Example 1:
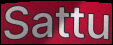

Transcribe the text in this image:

Sattu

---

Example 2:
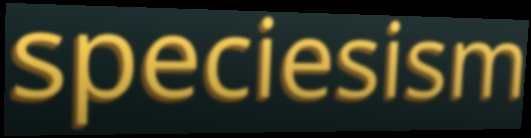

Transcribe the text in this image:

speciesism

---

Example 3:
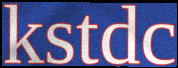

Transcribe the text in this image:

kstdc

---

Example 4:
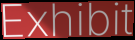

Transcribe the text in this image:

Exhibit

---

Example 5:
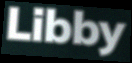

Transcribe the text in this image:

Libby